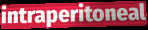
intraperitoneal